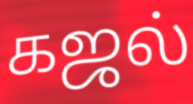
கஜல்